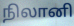
நிலானி